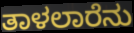
ತಾಳಲಾರೆನು